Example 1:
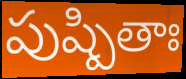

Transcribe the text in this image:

పుష్పితాః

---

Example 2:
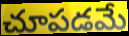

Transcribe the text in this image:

చూపడమే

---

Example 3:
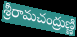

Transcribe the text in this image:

శ్రీరామచంద్రుణ్ణి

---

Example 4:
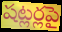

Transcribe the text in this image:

షట్లర్లపై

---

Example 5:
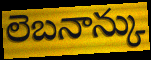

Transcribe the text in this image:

లెబనాన్కు